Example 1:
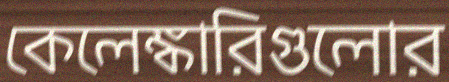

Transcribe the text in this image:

কেলেঙ্কারিগুলোর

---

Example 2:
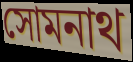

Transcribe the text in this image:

সোমনাথ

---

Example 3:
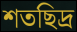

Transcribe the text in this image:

শতছিদ্র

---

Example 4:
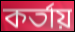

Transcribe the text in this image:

কর্তায়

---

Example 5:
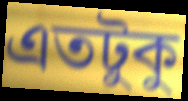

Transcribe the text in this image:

এতটুকু